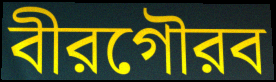
বীরগৌরব